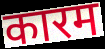
कारम